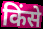
किंसे